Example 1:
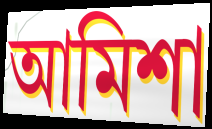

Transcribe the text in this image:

আমিশা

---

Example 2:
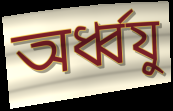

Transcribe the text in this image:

অর্ধ্বযু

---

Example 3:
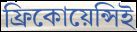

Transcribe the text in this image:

ফ্রিকোয়েন্সিই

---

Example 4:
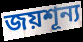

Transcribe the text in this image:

জয়শূন্য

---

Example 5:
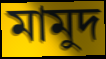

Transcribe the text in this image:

মামুদ